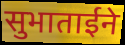
सुभाताईने